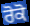
ਰੋਕੋ